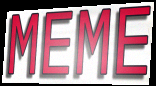
MEME